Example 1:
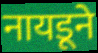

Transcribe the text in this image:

नायडूने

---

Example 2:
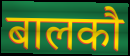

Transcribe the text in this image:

बालकौ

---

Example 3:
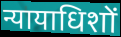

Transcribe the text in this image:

न्यायाधिशों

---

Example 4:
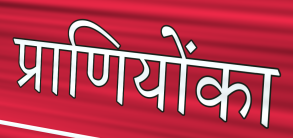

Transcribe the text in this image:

प्राणियोंका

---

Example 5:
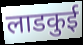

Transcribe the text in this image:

लाडकुई